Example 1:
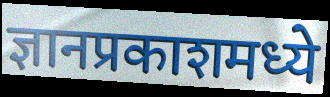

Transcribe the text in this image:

ज्ञानप्रकाशमध्ये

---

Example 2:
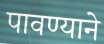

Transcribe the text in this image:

पावण्याने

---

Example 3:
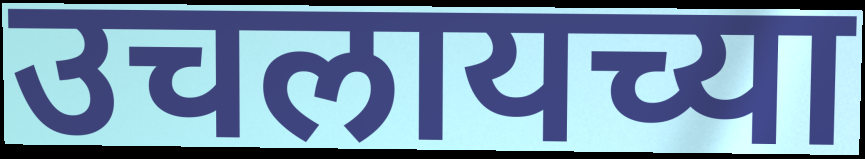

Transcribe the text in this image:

उचलायच्या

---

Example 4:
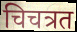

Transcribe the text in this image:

चिचत्रत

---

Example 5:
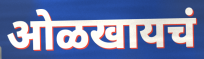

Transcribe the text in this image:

ओळखायचं